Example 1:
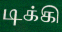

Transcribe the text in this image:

டிக்கி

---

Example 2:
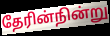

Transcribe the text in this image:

தேரின்நின்று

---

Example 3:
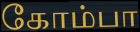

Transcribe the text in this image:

கோம்பா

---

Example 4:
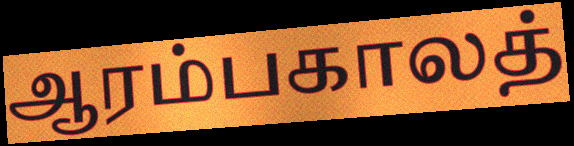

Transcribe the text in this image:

ஆரம்பகாலத்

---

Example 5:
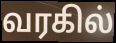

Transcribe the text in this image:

வரகில்